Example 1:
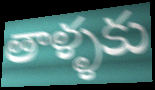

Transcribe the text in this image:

తాళ్ళకు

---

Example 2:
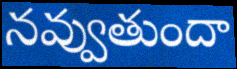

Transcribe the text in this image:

నవ్వుతుందా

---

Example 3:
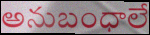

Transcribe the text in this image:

అనుబంధాలే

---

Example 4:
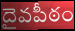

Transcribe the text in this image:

దైవపీఠం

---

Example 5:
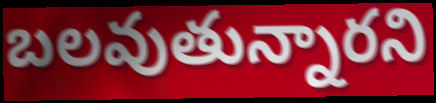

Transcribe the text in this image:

బలవుతున్నారని